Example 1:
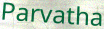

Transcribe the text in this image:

Parvatha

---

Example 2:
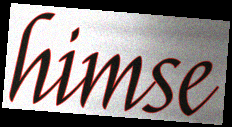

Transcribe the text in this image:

himse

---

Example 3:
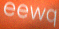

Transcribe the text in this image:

eewq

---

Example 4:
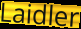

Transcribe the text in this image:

Laidler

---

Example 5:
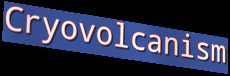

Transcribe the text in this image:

Cryovolcanism